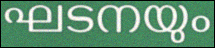
ഘടനയും